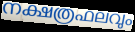
നക്ഷത്രഫലവും